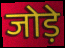
जोड़े